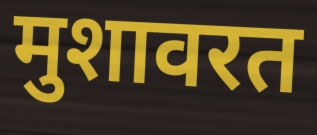
मुशावरत